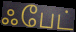
ஃபேட்